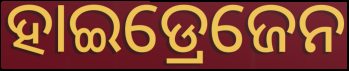
ହାଇଡ୍ରେଜେନ